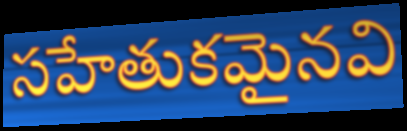
సహేతుకమైనవి